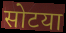
सोटया